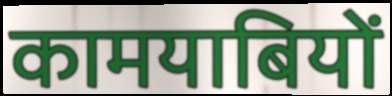
कामयाबियों